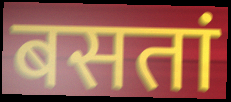
बसतां